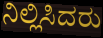
ನಿಲ್ಲಿಸಿದರು